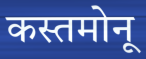
कस्तमोनू